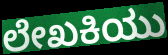
ಲೇಖಕಿಯು